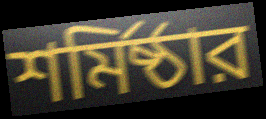
শর্মিষ্ঠার